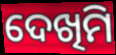
ଦେଖିମି